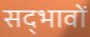
सद्भावों